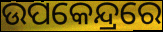
ଉପକେନ୍ଦ୍ରରେ